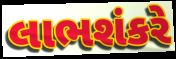
લાભશંકરે